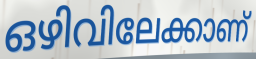
ഒഴിവിലേക്കാണ്